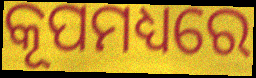
କୂପମଧ୍ୟରେ